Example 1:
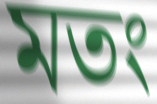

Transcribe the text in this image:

মতং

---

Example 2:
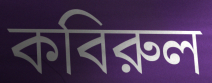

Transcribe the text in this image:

কবিরুল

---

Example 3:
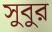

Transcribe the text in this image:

সুবুর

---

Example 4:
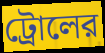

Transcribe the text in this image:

ট্রোলের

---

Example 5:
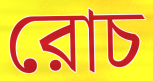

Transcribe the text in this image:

রোচ